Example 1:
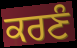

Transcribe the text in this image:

ਕਰਣੰ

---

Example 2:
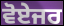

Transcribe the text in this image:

ਵੋਏਜਰ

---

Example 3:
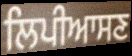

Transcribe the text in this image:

ਲਿਪੀਆਸਣ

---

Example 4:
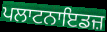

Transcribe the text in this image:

ਪਲਾਟਨਾਇਡਜ਼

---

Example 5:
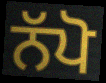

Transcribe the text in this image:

ਨੱਪੋ